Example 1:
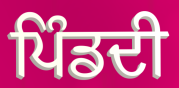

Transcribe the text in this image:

ਪਿੰਡਦੀ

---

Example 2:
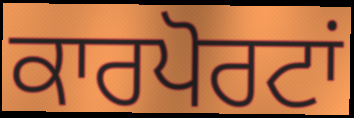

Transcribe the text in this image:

ਕਾਰਪੋਰਟਾਂ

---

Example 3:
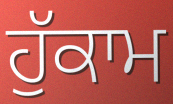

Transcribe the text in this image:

ਹੁੱਕਾਮ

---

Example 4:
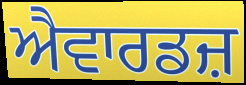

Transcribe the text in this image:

ਐਵਾਰਡਜ਼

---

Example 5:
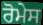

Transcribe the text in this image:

ਰੋਮੇਸ